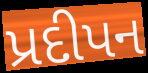
પ્રદીપન